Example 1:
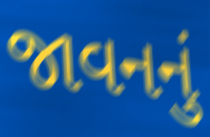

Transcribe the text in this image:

જાવનનું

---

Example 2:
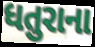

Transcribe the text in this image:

ધતુરાના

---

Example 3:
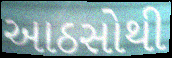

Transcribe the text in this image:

આઠસોથી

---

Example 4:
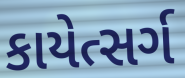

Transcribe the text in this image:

કાયેત્સર્ગ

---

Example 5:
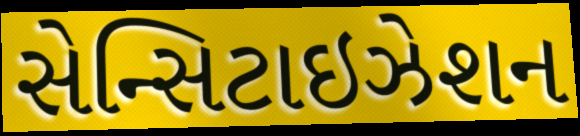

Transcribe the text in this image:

સેન્સિટાઇઝેશન